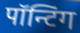
पॉन्टिंग